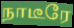
நாடீரே